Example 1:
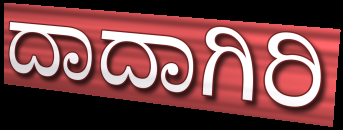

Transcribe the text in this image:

ದಾದಾಗಿರಿ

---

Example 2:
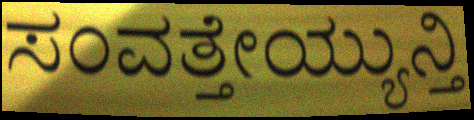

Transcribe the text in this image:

ಸಂವತ್ತೇಯ್ಯುನ್ತಿ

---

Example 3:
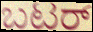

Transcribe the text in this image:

ಬಟರ್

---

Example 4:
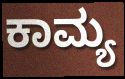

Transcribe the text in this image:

ಕಾಮ್ಯ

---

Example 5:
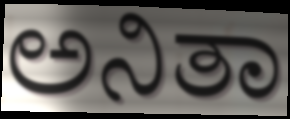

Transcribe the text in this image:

ಅನಿತಾ